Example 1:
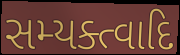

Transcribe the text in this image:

સમ્યક્ત્વાદિ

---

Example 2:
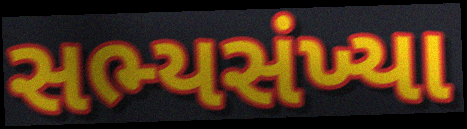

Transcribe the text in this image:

સભ્યસંખ્યા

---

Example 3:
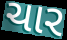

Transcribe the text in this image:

ચાર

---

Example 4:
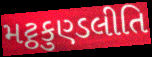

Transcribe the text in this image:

મટ્ઠકુણ્ડલીતિ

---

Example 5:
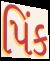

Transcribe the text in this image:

પિંક